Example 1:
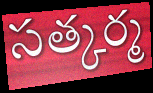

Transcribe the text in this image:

సత్కర్మ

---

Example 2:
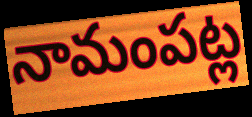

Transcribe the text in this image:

నామంపట్ల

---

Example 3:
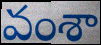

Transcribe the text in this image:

వంశా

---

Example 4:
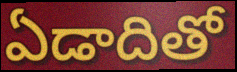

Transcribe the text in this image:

ఏడాదితో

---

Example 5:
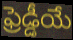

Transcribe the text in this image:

ఫ్రెడ్డీయే